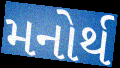
મનોર્થ